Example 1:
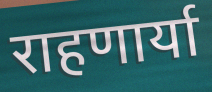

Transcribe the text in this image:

राहणार्या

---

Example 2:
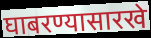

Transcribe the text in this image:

घाबरण्यासारखे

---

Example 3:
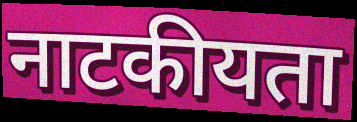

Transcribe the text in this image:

नाटकीयता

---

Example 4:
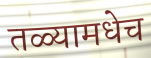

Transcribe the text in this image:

तळ्यामधेच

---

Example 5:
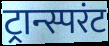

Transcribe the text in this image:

ट्रान्स्परंट